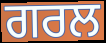
ਗਰਲ